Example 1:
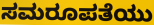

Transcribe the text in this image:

ಸಮರೂಪತೆಯು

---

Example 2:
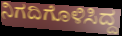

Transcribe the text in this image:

ನಿಗದಿಗೊಳಿಸಿದ್ದ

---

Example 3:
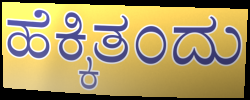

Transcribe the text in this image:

ಹೆಕ್ಕಿತಂದು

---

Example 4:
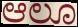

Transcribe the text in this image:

ಆಲೂ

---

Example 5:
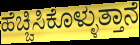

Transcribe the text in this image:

ಹೆಚ್ಚಿಸಿಕೊಳ್ಳುತ್ತಾನೆ